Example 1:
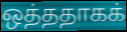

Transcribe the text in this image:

ஒத்ததாகக்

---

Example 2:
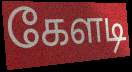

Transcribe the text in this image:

கேளடி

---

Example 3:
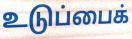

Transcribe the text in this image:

உடுப்பைக்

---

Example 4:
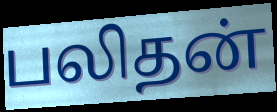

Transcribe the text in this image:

பலிதன்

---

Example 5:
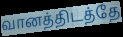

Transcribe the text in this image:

வானத்திடத்தே